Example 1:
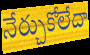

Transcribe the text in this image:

నేర్చుకోలేదా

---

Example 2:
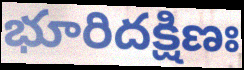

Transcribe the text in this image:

భూరిదక్షిణః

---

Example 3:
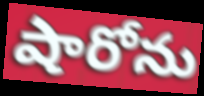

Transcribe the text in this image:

షారోను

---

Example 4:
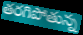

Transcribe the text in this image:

తరగిపోతున్న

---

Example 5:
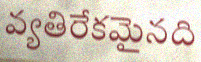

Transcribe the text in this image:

వ్యతిరేకమైనది